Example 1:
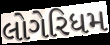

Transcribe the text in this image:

લોગેરિધમ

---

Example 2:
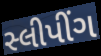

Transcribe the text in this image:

સ્લીપીંગ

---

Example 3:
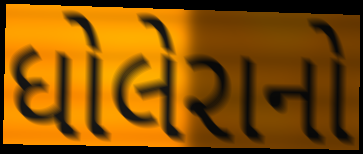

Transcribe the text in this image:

ધોલેરાનો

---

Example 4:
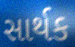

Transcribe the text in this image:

સાર્થક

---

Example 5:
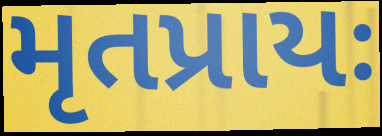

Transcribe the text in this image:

મૃતપ્રાયઃ